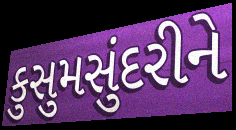
કુસુમસુંદરીને